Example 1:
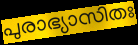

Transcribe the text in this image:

പുരാഭ്യാസിതഃ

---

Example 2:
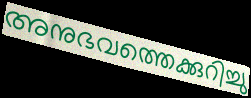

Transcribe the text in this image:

അനുഭവത്തെക്കുറിച്ചു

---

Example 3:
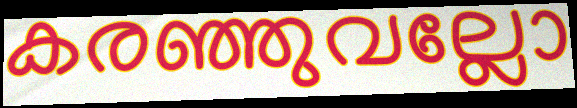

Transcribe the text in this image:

കരഞ്ഞുവല്ലോ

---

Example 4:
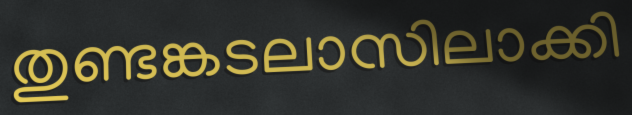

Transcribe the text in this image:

തുണ്ടങ്കടലാസിലാക്കി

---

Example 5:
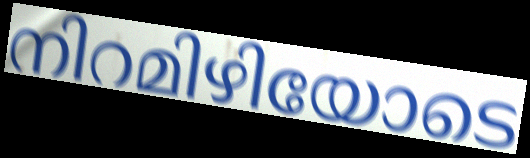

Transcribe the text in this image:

നിറമിഴിയോടെ